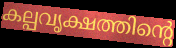
കല്പവൃക്ഷത്തിന്റെ